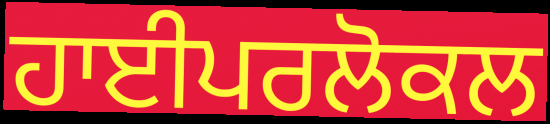
ਹਾਈਪਰਲੋਕਲ